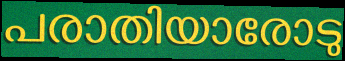
പരാതിയാരോടു